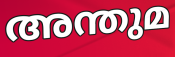
അന്തുമ